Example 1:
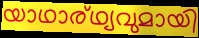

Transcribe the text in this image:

യാഥാര്ഥ്യവുമായി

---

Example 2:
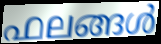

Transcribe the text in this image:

ഫലങ്ങൾ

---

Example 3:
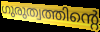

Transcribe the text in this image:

ഗുരുത്വത്തിന്റെ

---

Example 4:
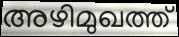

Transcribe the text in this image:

അഴിമുഖത്ത്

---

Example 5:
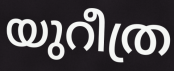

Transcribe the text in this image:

യുറീത്ര